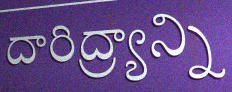
దారిద్ర్యాన్ని